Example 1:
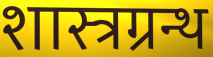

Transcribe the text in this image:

शास्त्रग्रन्थ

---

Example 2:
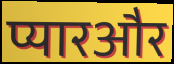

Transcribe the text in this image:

प्यारऔर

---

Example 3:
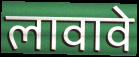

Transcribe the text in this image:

लावावे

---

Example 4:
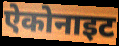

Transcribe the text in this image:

ऐकोनाइट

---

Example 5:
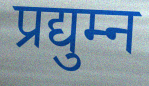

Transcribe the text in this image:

प्रद्युम्न